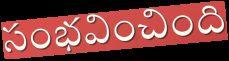
సంభవించింది